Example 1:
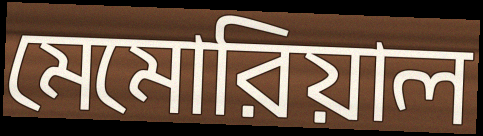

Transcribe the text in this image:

মেমোরিয়াল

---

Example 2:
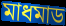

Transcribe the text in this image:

মাধমাড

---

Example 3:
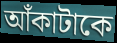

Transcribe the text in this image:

আঁকাটাকে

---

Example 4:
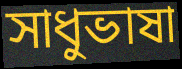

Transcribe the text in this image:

সাধুভাষা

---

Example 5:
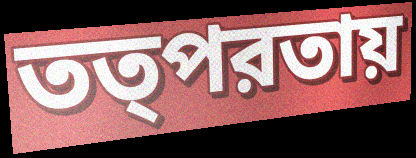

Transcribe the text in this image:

তত্পরতায়